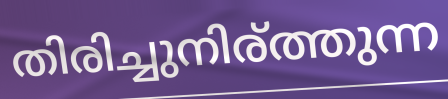
തിരിച്ചുനിര്ത്തുന്ന